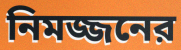
নিমজ্জনের